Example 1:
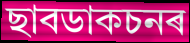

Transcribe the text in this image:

ছাবডাকচনৰ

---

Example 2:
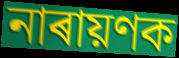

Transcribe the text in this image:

নাৰায়ণক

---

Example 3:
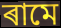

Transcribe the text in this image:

ৰামে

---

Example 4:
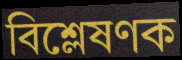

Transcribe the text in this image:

বিশ্লেষণক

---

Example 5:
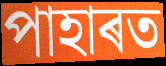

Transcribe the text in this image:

পাহাৰত